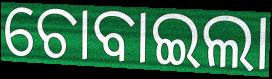
ଚୋବାଇଲା